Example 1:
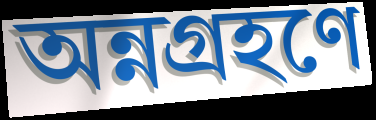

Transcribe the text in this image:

অন্নগ্রহণে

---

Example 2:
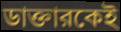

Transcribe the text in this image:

ডাক্তারকেই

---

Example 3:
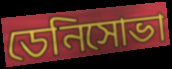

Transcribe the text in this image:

ডেনিসোভা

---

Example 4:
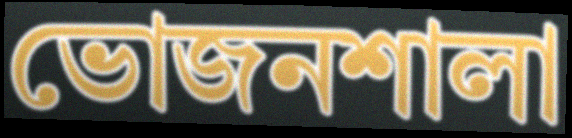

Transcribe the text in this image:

ভোজনশালা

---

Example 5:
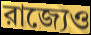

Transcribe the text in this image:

রাজ্যেও